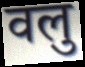
वलु